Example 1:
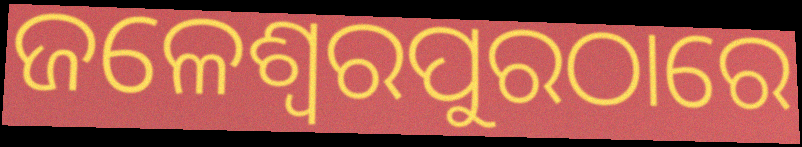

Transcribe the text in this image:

ଜଳେଶ୍ୱରପୁରଠାରେ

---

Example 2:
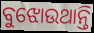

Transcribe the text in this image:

ବୁଝୋଉଥାନ୍ତି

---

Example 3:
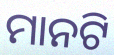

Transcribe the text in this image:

ମାନଟି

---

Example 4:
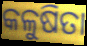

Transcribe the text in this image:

କଳୁଷିତା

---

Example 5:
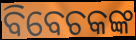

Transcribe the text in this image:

ବିବେଚକଙ୍କ